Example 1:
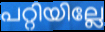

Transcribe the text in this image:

പറ്റിയില്ലേ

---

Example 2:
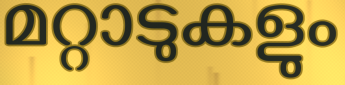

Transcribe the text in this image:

മറ്റാടുകളും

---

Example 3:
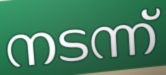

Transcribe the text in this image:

നടന്ന്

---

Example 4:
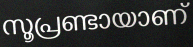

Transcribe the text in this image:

സൂപ്രണ്ടായാണ്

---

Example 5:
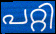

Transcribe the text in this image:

പറ്റി